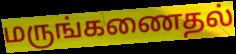
மருங்கணைதல்